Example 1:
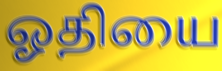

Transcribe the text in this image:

ஓதியை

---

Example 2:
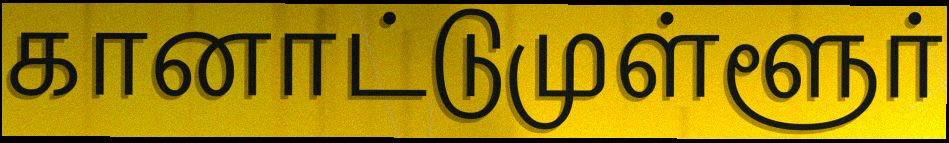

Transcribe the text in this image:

கானாட்டுமுள்ளூர்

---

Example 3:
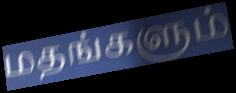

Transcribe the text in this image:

மதங்களும்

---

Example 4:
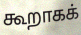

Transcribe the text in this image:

கூறாகக்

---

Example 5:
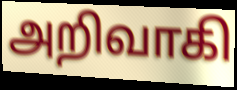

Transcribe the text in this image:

அறிவாகி